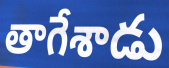
తాగేశాడు